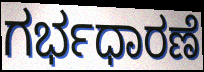
ಗರ್ಭಧಾರಣೆ